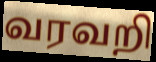
வரவறி